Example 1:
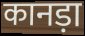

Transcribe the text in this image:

कानड़ा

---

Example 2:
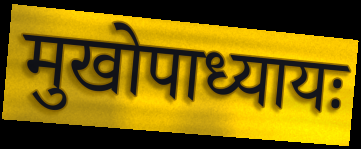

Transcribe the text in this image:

मुखोपाध्यायः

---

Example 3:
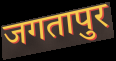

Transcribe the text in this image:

जगतापुर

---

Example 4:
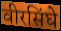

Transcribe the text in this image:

वीरसिंघे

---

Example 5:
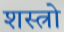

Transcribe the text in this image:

शस्त्रो